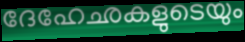
ദേഹേഛകളുടെയും